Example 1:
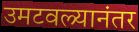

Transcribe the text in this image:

उमटवल्यानंतर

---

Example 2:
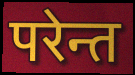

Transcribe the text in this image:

परेन्त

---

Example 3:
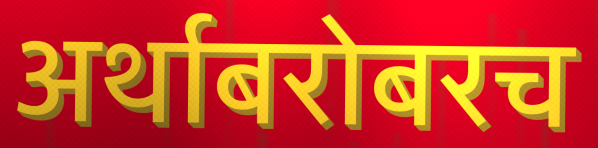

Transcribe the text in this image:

अर्थाबरोबरच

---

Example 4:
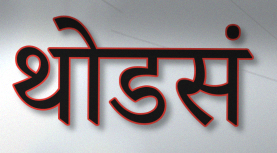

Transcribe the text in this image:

थोडसं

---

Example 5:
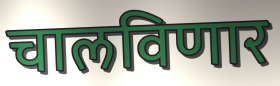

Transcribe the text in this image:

चालविणार